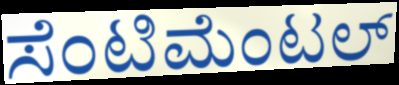
ಸೆಂಟಿಮೆಂಟಲ್